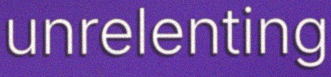
unrelenting